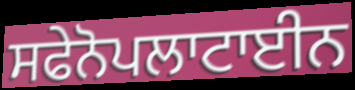
ਸਫੇਨੋਪਲਾਟਾਈਨ